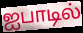
ஐபாடில்